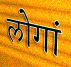
लोगां